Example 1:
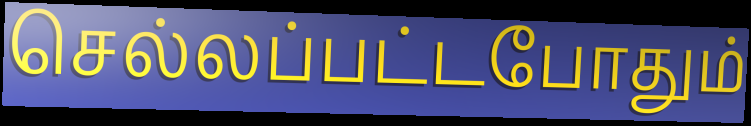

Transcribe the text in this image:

செல்லப்பட்டபோதும்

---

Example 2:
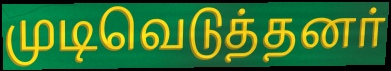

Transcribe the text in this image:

முடிவெடுத்தனர்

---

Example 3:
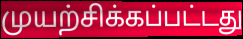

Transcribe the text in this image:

முயற்சிக்கப்பட்டது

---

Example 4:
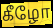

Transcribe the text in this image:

கீழோ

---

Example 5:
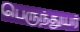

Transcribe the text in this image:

பெருந்துயர்